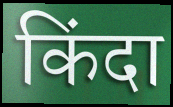
किंदा